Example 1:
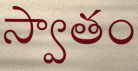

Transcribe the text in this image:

స్వాతం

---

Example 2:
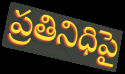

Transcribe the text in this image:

ప్రతినిధిపై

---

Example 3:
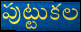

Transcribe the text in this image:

పుట్టుకల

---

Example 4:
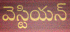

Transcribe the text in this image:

వెస్టియన్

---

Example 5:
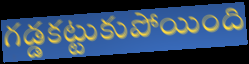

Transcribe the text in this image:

గడ్డకట్టుకుపోయింది